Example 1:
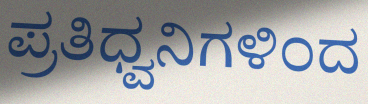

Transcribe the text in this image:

ಪ್ರತಿಧ್ವನಿಗಳಿಂದ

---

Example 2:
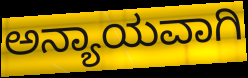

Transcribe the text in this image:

ಅನ್ಯಾಯವಾಗಿ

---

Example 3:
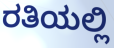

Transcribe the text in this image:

ರತಿಯಲ್ಲಿ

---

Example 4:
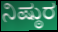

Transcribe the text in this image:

ನಿಷ್ಠುರ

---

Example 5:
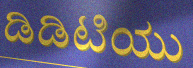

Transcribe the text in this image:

ಡಿಡಿಟಿಯು